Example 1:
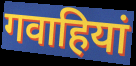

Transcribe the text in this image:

गवाहियां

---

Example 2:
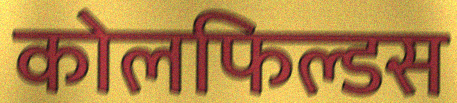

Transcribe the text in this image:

कोलफिल्डस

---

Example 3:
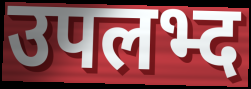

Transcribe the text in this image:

उपलभ्द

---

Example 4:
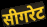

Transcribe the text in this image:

सीगरेट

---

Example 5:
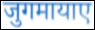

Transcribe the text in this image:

जुगमायाए